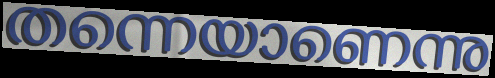
തന്നെയാണെന്നു